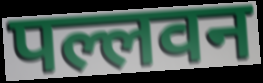
पल्लवन